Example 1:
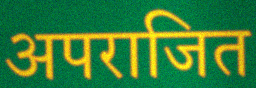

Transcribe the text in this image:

अपराजित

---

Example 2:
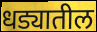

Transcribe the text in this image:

धड्यातील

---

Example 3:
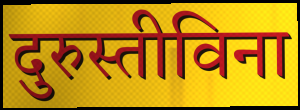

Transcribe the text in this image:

दुरुस्तीविना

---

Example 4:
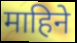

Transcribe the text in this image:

माहिने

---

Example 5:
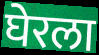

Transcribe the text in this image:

घेरला